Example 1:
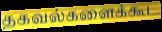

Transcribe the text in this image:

தகவல்களைக்கூட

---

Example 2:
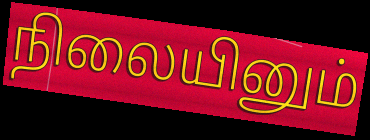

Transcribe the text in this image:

நிலையினும்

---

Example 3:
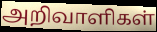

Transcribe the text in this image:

அறிவாளிகள்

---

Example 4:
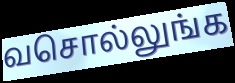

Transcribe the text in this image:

வசொல்லுங்க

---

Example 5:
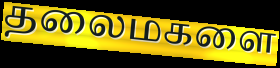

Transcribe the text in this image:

தலைமகளை